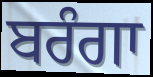
ਬਰੰਗਾ